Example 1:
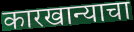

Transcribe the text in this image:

कारखान्याचा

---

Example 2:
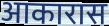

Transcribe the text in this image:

आकारास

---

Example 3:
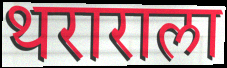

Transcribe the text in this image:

थराराला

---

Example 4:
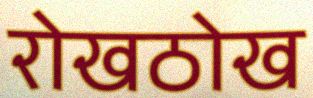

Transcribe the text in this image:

रोखठोख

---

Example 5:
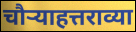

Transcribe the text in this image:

चौऱ्याहत्तराव्या